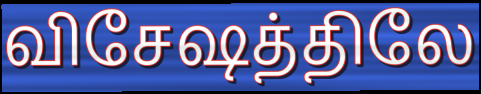
விசேஷத்திலே